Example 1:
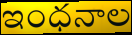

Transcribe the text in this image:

ఇంధనాల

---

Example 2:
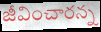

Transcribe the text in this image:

జీవించారన్న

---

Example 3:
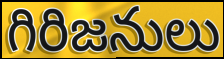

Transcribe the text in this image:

గిరిజనులు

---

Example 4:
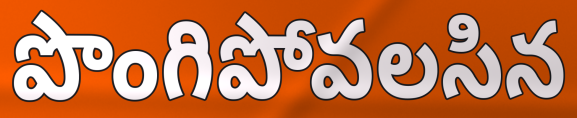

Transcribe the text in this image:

పొంగిపోవలసిన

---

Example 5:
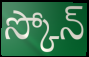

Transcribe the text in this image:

స్కోన్